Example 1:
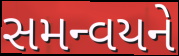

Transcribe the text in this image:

સમન્વયને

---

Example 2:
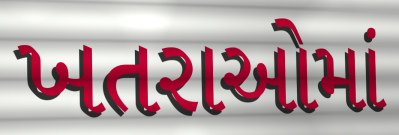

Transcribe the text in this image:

ખતરાઓમાં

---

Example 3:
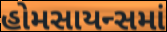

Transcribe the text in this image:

હોમસાયન્સમાં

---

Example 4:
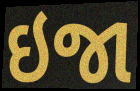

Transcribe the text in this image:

ઇજા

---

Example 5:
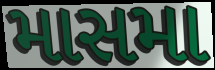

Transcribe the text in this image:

માસમા